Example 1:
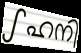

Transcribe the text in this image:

ഽഹനി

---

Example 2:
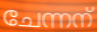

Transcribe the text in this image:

ചേന്നന്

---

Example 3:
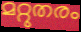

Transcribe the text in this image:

മറ്റുതരം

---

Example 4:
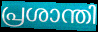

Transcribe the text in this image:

പ്രശാന്തി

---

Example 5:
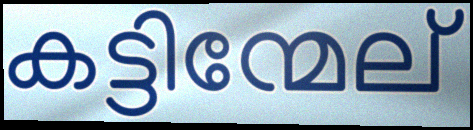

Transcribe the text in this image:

കട്ടിന്മേല്